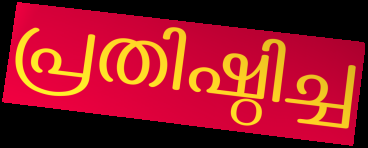
പ്രതിഷ്ഠിച്ച